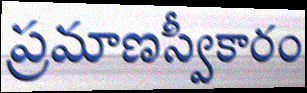
ప్రమాణస్వీకారం